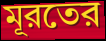
মূরতের